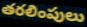
తరలింపులు